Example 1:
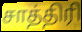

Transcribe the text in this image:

சாத்திரி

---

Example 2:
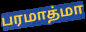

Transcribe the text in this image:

பரமாத்மா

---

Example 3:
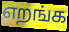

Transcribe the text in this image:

எறங்க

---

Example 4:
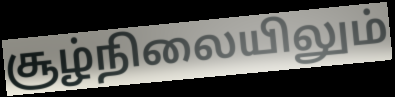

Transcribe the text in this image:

சூழ்நிலையிலும்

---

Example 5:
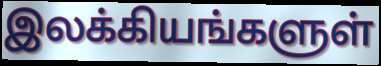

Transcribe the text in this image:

இலக்கியங்களுள்